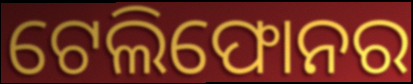
ଟେଲିଫୋନର